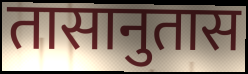
तासानुतास